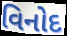
વિનોદ